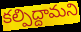
కల్పిద్దామని